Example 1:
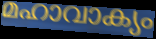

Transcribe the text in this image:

മഹാവാക്യം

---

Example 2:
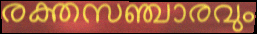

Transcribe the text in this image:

രക്തസഞ്ചാരവും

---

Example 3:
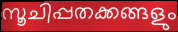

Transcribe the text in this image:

സൂചിപ്പതക്കങ്ങളും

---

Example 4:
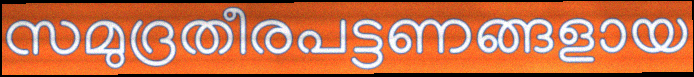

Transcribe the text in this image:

സമുദ്രതീരപട്ടണങ്ങളായ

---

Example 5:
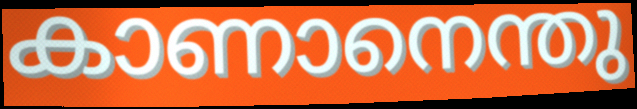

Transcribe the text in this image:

കാണാനെന്തു